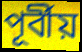
পূর্বীয়